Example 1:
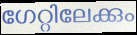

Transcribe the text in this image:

ഗേറ്റിലേക്കും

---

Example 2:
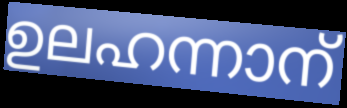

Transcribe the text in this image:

ഉലഹന്നാന്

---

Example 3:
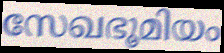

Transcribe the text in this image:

സേഖഭൂമിയം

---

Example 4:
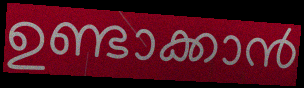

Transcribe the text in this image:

ഉണ്ടാക്കാൻ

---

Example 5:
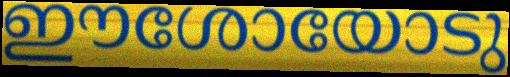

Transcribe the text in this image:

ഈശോയോടു